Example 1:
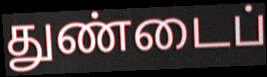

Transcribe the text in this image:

துண்டைப்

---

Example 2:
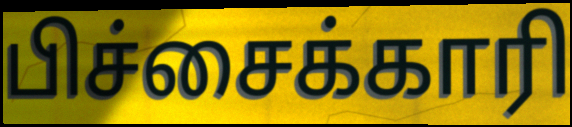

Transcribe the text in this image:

பிச்சைக்காரி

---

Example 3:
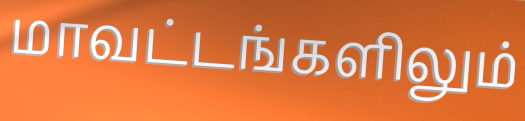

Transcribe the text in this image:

மாவட்டங்களிலும்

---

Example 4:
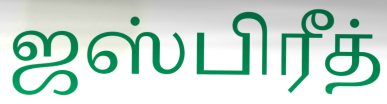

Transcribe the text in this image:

ஜஸ்பிரீத்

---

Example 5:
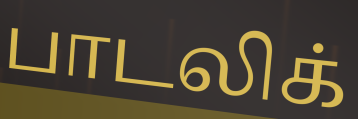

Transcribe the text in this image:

பாடலிக்